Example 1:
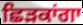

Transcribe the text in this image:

ਛਿੜਕਾਂਗਾ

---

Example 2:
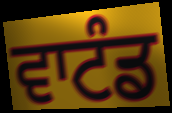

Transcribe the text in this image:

ਵਾਟੰਡ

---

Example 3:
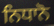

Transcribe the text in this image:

ਨਿਧਾਨੋ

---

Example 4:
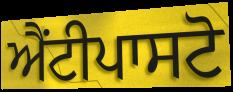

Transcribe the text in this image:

ਐਂਟੀਪਾਸਟੋ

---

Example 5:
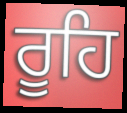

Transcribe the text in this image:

ਰੂਹਿ